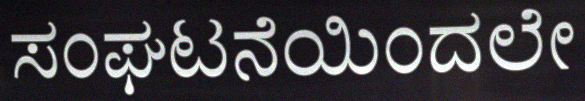
ಸಂಘಟನೆಯಿಂದಲೇ